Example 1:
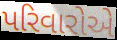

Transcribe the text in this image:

પરિવારોએ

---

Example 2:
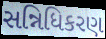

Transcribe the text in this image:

સન્નિધિકરણ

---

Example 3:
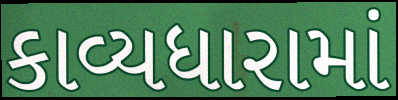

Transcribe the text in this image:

કાવ્યધારામાં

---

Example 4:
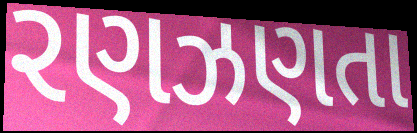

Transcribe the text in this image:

રણઝણતા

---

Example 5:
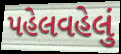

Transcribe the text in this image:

પહેલવહેલું